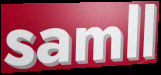
samll